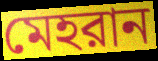
মেহরান